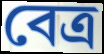
বেত্র